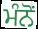
ਮੰਨੋਂ